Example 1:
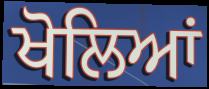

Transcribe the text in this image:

ਖੋਲਿਆਂ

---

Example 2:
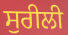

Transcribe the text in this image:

ਸੁਰੀਲੀ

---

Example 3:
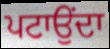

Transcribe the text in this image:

ਪਟਾਉਂਦਾ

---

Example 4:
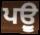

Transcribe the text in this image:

ਪਉੂ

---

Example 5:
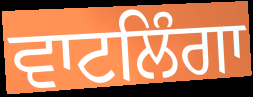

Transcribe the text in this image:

ਵਾਟਲਿੰਗਾ